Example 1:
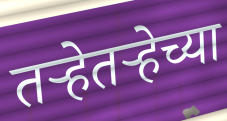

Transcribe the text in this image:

तर्‍हेतर्‍हेच्या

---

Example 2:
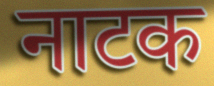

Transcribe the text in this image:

नाटक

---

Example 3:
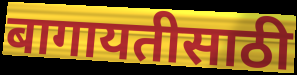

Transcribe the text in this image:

बागायतीसाठी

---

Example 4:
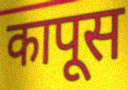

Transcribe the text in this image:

कापूस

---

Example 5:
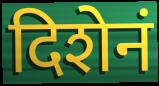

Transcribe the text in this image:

दिशेनं